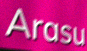
Arasu